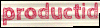
productid